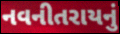
નવનીતરાયનું